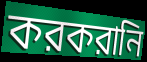
করকরানি